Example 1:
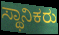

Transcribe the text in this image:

ಸ್ಥಾನಿಕರು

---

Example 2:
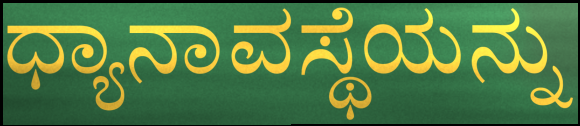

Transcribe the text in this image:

ಧ್ಯಾನಾವಸ್ಥೆಯನ್ನು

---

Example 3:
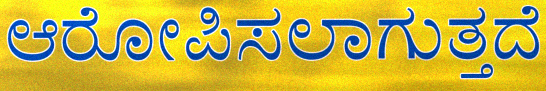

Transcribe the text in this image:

ಆರೋಪಿಸಲಾಗುತ್ತದೆ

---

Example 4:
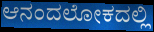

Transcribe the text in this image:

ಆನಂದಲೋಕದಲ್ಲಿ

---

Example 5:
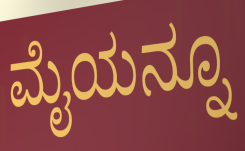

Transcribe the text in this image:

ಮೈಯನ್ನೂ